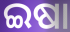
ଇଷା